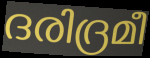
ദരിദ്രമീ